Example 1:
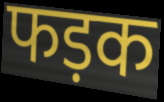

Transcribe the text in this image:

फड़क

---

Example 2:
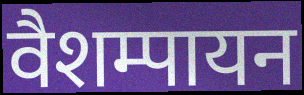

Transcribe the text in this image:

वैशम्पायन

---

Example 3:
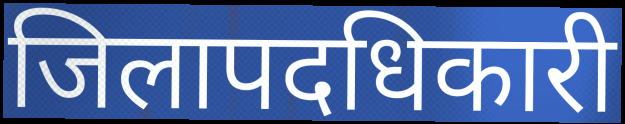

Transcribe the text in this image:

जिलापदधिकारी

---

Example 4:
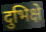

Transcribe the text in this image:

दुभिक्षे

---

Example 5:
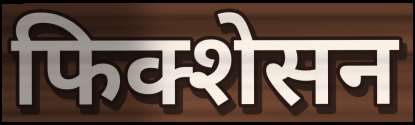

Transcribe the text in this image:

फिक्शेसन